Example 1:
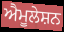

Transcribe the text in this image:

ਐਮੂਲੇਸ਼ਨ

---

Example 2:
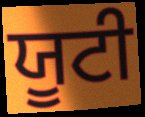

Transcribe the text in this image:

ਯੂਟੀ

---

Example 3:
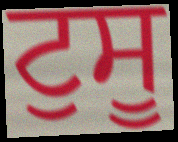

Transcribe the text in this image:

ਟੁਸੂ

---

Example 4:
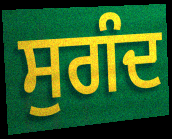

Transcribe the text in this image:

ਸੁਗੰਦ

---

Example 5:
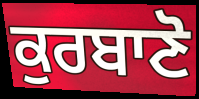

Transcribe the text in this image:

ਕੁਰਬਾਣੋ